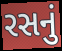
રસનું